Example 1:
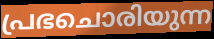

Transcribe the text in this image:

പ്രഭചൊരിയുന്ന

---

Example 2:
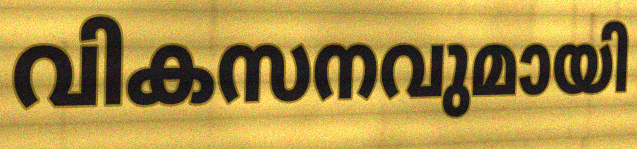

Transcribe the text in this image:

വികസനവുമായി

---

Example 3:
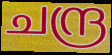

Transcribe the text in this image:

ചന്ദ്ര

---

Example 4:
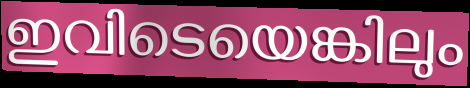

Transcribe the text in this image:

ഇവിടെയെങ്കിലും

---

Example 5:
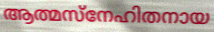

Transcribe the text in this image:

ആത്മസ്നേഹിതനായ